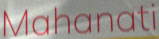
Mahanati